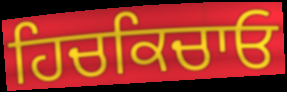
ਹਿਚਕਿਚਾਓ